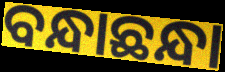
ବନ୍ଧାଛନ୍ଧା